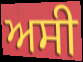
ਅਸੀ